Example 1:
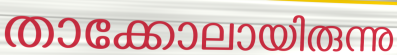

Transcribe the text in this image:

താക്കോലായിരുന്നു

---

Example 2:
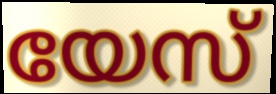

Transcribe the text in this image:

യേസ്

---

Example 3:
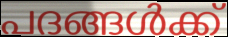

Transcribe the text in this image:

പദങ്ങൾക്ക്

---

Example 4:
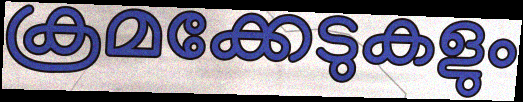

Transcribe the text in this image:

ക്രമക്കേടുകളും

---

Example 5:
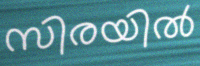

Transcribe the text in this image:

സിരയിൽ